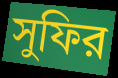
সুফির